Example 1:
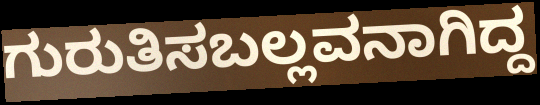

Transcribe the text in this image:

ಗುರುತಿಸಬಲ್ಲವನಾಗಿದ್ದ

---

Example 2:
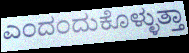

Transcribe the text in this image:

ಎಂದಂದುಕೊಳ್ಳುತ್ತಾ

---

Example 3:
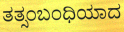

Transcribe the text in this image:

ತತ್ಸಂಬಂಧಿಯಾದ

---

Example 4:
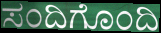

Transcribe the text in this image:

ಸಂದಿಗೊಂದಿ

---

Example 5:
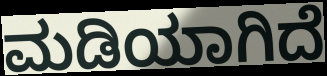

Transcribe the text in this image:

ಮಡಿಯಾಗಿದೆ